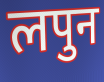
लपुन